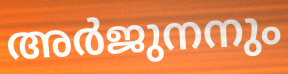
അർജുനനും